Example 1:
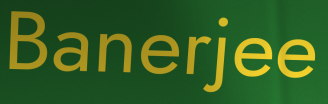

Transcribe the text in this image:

Banerjee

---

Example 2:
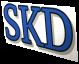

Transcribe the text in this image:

SKD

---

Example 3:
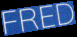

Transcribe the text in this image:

FRED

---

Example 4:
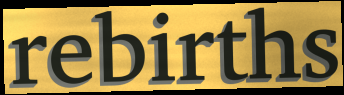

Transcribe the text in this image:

rebirths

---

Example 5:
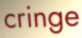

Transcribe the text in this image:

cringe